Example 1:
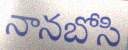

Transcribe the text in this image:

నానబోసి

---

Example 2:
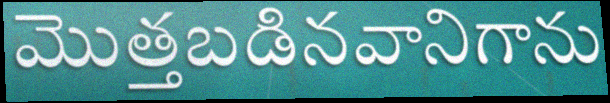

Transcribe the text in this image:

మొత్తబడినవానిగాను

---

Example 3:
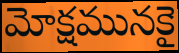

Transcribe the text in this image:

మోక్షమునకై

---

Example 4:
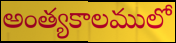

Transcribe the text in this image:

అంత్యకాలములో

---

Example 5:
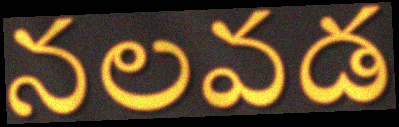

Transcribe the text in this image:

నలవడ